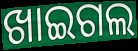
ଖାଇଗଲ